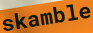
skamble